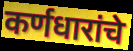
कर्णधारांचे